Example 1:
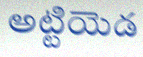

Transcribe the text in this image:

అట్టియెడ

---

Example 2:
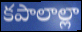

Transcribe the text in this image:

కపాలాల్లా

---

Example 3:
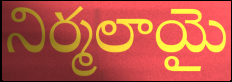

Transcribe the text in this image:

నిర్మలాయై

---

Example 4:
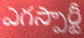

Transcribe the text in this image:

ఎగస్పార్టీ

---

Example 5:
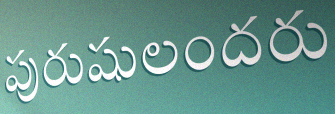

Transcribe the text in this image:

పురుషులందరు